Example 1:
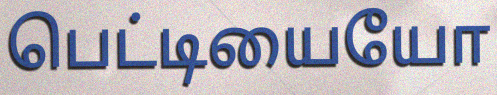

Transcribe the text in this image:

பெட்டியையோ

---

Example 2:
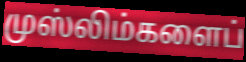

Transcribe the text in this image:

முஸ்லிம்களைப்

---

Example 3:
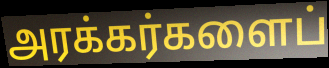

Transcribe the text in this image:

அரக்கர்களைப்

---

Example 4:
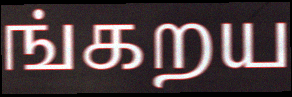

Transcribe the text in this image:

ங்கறய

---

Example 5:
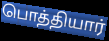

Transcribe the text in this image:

பொத்தியார்